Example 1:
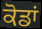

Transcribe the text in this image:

ਕੋਡਾਂ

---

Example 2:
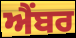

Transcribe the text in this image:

ਐਂਬਰ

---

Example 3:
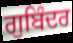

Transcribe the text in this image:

ਗੁਬਿੰਦਰ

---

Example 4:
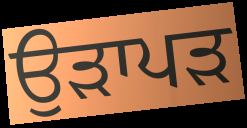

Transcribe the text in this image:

ਉੜਾਪੜ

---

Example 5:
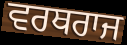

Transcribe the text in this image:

ਵਰਥਰਾਜ